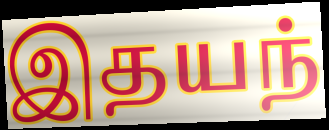
இதயந்